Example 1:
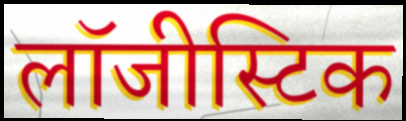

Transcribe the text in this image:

लॉजीस्टिक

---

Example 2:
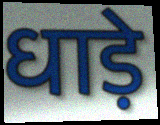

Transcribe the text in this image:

धाड़े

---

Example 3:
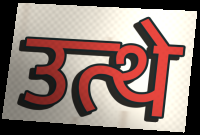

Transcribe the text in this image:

उत्थे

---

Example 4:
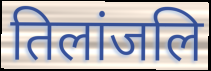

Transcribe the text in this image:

तिलांजलि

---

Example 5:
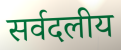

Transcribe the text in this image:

सर्वदलीय